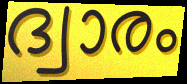
ദ്വാരം